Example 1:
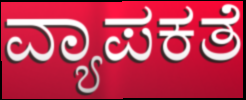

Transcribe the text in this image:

ವ್ಯಾಪಕತೆ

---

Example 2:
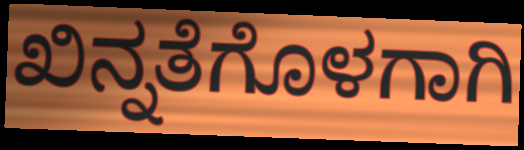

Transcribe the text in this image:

ಖಿನ್ನತೆಗೊಳಗಾಗಿ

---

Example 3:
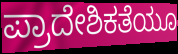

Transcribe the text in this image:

ಪ್ರಾದೇಶಿಕತೆಯೂ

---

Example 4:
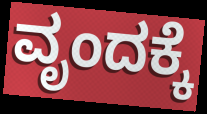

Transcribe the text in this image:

ವೃಂದಕ್ಕೆ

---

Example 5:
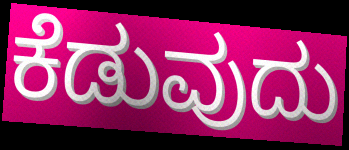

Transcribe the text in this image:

ಕೆಡುವುದು